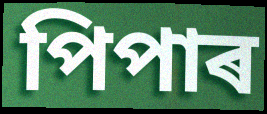
পিপাৰ